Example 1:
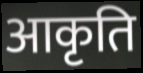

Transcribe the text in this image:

आकृति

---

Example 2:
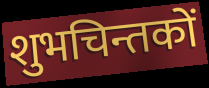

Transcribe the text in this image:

शुभचिन्तकों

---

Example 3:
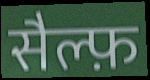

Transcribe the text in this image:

सैल्फ़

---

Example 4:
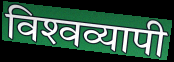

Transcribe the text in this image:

विश्‍वव्यापी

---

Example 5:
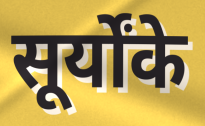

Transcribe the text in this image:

सूर्योंके